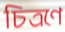
চিত্ৰণে